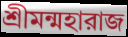
শ্রীমন্মহারাজ